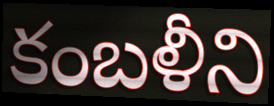
కంబళీని